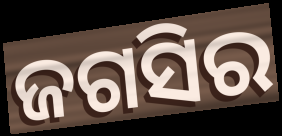
ଜଗସିର